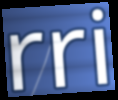
rri